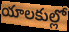
యాలకుల్లో